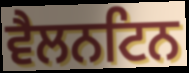
ਵੈਲਨਟਿਨ